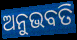
ଅନୁଭବତି